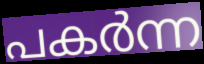
പകർന്ന